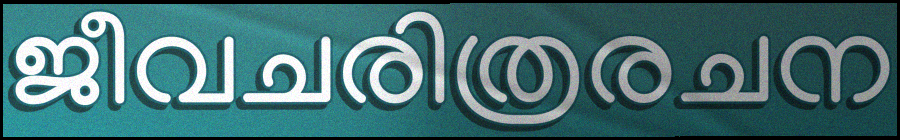
ജീവചരിത്രരചന